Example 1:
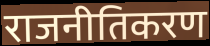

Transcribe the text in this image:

राजनीतिकरण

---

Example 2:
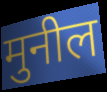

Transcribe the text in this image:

मुनील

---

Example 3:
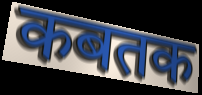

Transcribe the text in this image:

कबतक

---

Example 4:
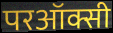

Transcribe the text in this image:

परऑक्सी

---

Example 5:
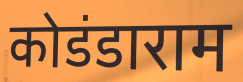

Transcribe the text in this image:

कोडंडाराम